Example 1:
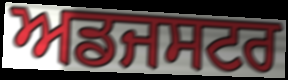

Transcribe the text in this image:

ਅਡਜਸਟਰ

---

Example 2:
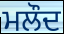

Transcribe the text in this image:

ਮਲੌਦ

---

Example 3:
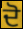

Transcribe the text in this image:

ਦੋ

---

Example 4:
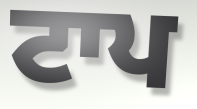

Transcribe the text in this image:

ਟਾਪ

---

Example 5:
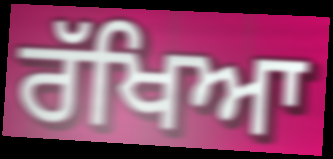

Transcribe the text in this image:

ਰੱਖਿਆ